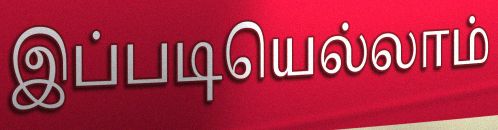
இப்படியெல்லாம்